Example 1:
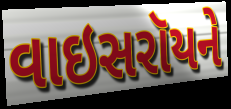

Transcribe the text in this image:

વાઇસરૉયને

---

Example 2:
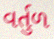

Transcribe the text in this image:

વર્તુળ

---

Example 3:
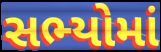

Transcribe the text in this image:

સભ્યોમાં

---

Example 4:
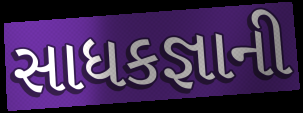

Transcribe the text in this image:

સાધકજ્ઞાની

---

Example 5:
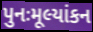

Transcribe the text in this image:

પુનઃમૂલ્યાંકન